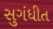
સુગંધીત